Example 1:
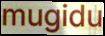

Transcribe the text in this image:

mugidu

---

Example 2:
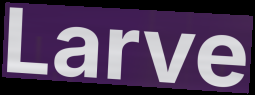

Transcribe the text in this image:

Larve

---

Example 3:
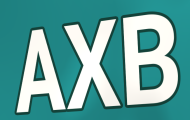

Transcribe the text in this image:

AXB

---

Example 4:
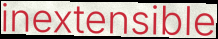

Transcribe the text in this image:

inextensible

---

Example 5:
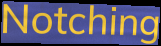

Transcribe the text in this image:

Notching